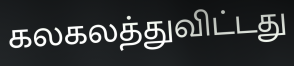
கலகலத்துவிட்டது